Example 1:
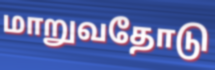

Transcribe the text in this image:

மாறுவதோடு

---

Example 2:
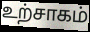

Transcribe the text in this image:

உற்சாகம்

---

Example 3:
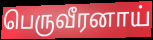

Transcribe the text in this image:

பெருவீரனாய்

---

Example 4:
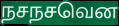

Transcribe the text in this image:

நசநசவென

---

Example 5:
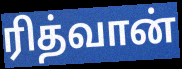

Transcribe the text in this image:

ரித்வான்